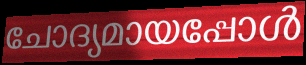
ചോദ്യമായപ്പോൾ